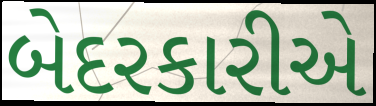
બેદરકારીએ